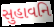
સુહાવનિ